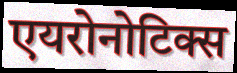
एयरोनोटिक्स